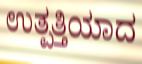
ಉತ್ಪತ್ತಿಯಾದ